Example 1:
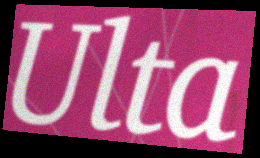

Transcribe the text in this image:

Ulta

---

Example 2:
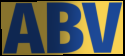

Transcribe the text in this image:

ABV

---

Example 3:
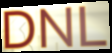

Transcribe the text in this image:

DNL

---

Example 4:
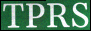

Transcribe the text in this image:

TPRS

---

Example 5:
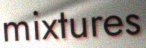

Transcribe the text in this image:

mixtures